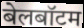
बेलबॉटम